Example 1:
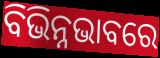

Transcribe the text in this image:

ବିଭିନ୍ନଭାବରେ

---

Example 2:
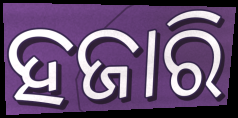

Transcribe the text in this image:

ହଜାରି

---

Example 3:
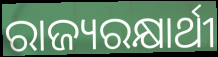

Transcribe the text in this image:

ରାଜ୍ୟରକ୍ଷାର୍ଥୀ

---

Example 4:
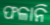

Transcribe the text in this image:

ଫଳାନି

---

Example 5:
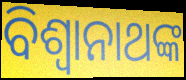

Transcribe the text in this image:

ବିଶ୍ୱାନାଥଙ୍କ